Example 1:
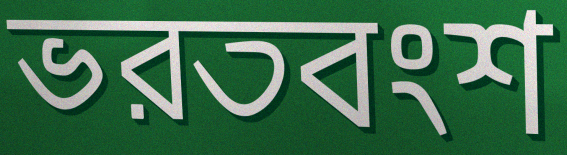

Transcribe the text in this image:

ভরতবংশ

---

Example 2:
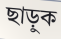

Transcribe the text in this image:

ছাড়ুক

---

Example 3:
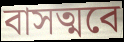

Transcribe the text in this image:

বাসত্মবে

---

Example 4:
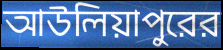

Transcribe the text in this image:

আউলিয়াপুরের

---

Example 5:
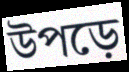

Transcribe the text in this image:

উপড়ে